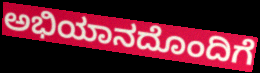
ಅಭಿಯಾನದೊಂದಿಗೆ